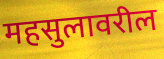
महसुलावरील